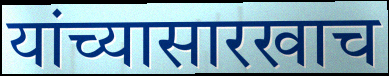
यांच्यासारखाच